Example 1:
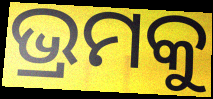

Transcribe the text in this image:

ଭ୍ରମକୁ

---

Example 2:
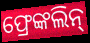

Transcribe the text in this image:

ଫ୍ରେଙ୍କଲିନ୍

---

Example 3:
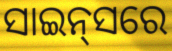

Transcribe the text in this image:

ସାଇନ୍‌ସରେ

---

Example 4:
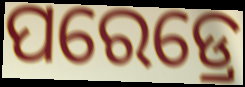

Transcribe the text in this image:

ପରେଡ୍ରେ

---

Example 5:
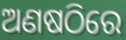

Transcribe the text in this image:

ଅଣଷଠିରେ